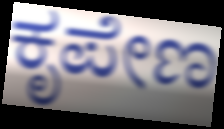
ಕೃಪೇಣ